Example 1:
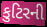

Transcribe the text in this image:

કુટિરની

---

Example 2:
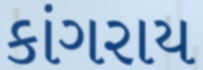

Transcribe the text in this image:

કાંગરાય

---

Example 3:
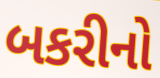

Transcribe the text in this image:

બકરીનો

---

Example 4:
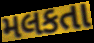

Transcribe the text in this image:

મલકતા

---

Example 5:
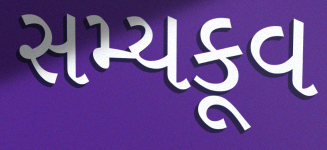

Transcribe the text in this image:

સમ્યકૂવ